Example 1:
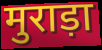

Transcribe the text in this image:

मुराड़ा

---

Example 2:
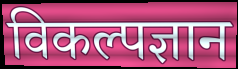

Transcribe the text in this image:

विकल्पज्ञान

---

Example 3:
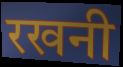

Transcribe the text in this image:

रखनी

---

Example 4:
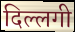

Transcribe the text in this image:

दिल्‍लगी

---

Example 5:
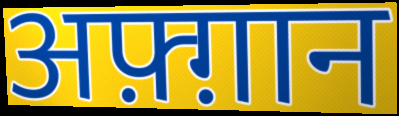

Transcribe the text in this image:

अफ़्ग़ान